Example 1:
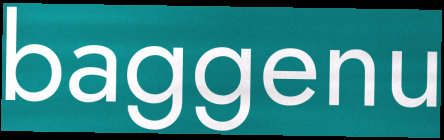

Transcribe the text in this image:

baggenu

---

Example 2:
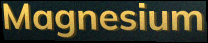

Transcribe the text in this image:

Magnesium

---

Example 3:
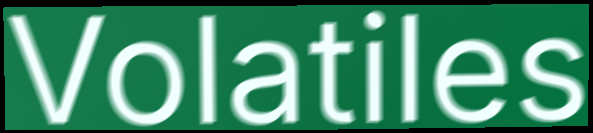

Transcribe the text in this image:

Volatiles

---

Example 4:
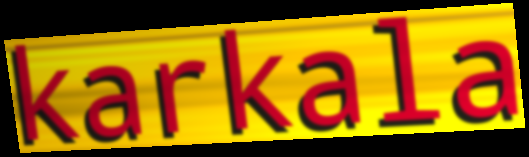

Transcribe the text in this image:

karkala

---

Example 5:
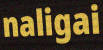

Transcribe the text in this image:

naligai